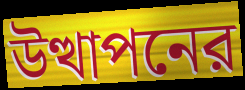
উত্থাপনের